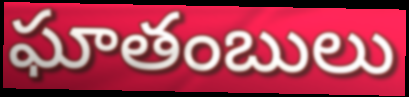
ఘాతంబులు